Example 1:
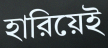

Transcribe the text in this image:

হারিয়েই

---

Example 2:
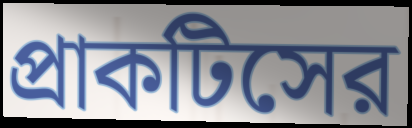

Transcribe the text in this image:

প্রাকটিসের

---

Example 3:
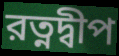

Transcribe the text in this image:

রত্নদ্বীপ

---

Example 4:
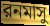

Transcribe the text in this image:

রনমাসু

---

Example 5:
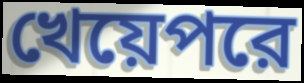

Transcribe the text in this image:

খেয়েপরে